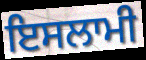
ਇਸਲਾਮੀ